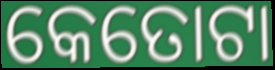
କେତୋଟା